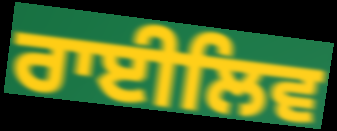
ਰਾਈਲਿਵ